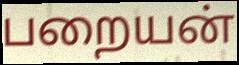
பறையன்